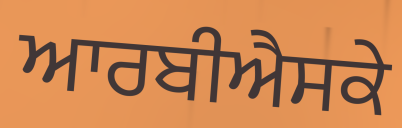
ਆਰਬੀਐਸਕੇ